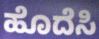
ಹೊದೆಸಿ